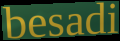
besadi